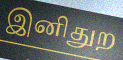
இனிதுற